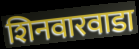
शिनवारवाडा